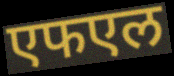
एफएल